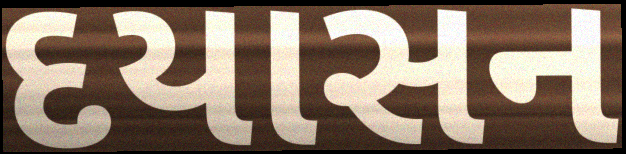
દયાસન